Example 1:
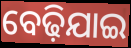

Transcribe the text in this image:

ବେଢ଼ିଯାଇ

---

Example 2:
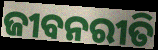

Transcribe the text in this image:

ଜୀବନରୀତି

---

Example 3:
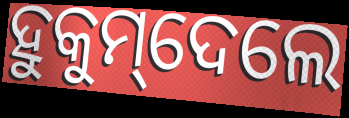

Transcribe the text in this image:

ହୁକୁମ୍‌ଦେଲେ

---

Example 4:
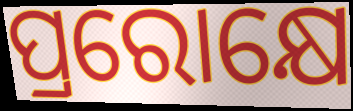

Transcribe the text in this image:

ପ୍ରରୋକ୍ଷେ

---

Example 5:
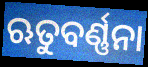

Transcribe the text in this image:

ଋତୁବର୍ଣ୍ଣନା